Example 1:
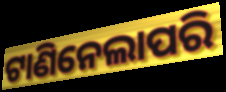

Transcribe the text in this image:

ଟାଣିନେଲାପରି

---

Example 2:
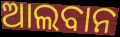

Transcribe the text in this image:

ଆଲବାନ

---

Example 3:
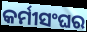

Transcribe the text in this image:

କର୍ମୀସଂଘର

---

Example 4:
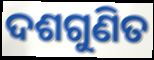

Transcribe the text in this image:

ଦଶଗୁଣିତ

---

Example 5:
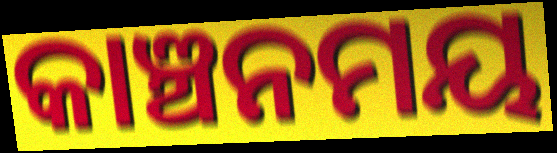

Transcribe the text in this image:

କାଞ୍ଚନମୟ